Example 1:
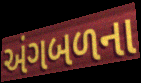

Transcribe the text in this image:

અંગબળના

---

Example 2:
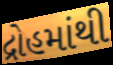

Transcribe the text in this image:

દ્રોહમાંથી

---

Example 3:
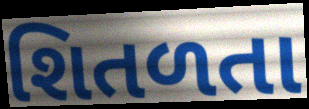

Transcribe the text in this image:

શિતળતા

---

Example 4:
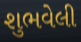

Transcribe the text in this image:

શુભવેલી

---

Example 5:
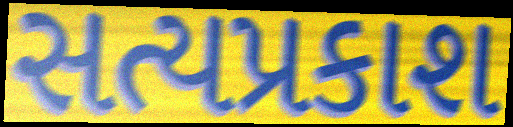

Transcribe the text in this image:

સત્યપ્રકાશ